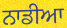
ਨਾਡੀਆ